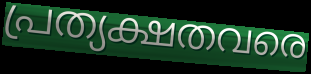
പ്രത്യക്ഷതവരെ